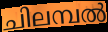
ചിലമ്പൽ